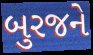
બુરજને